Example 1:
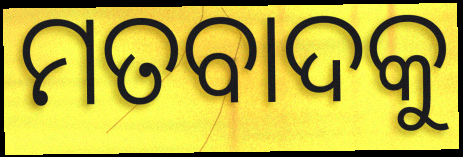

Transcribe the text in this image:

ମତବାଦକୁ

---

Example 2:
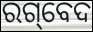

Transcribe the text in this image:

ରଗ୍‌ବେଦ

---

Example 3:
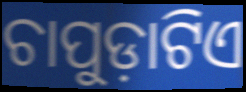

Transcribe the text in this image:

ଚାପୁଡ଼ାଟିଏ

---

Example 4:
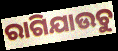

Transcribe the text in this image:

ରାଗିଯାଉଚୁ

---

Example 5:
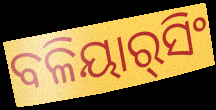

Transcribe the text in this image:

ବଳିୟାର୍‌ସିଂ